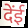
देंई